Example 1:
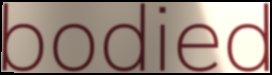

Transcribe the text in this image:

bodied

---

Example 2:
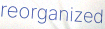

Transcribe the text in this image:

reorganized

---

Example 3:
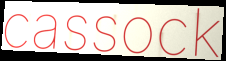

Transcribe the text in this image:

cassock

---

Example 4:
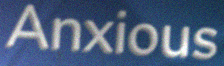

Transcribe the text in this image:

Anxious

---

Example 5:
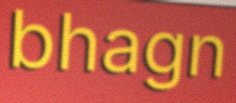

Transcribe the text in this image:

bhagn